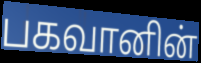
பகவானின்